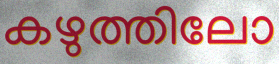
കഴുത്തിലോ